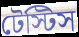
টেস্টিস